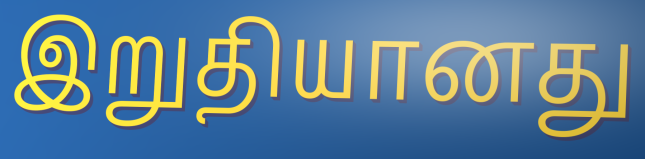
இறுதியானது